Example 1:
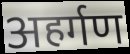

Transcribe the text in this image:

अहर्गण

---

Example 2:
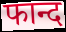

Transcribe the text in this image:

फान्द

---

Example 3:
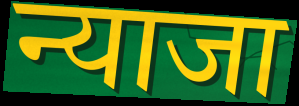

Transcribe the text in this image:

न्याजा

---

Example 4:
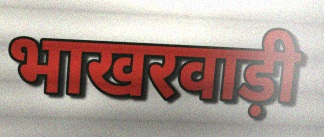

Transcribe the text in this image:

भाखरवाड़ी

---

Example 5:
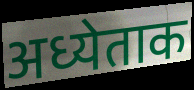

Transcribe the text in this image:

अध्येताक